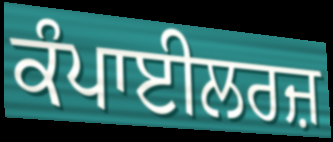
ਕੰਪਾਈਲਰਜ਼